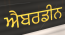
ਐਬਰਡੀਨ